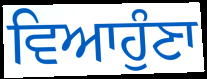
ਵਿਆਹੁੰਣਾ